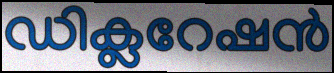
ഡിക്ലറേഷൻ